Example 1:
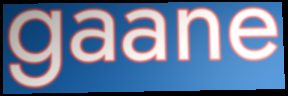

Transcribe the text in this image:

gaane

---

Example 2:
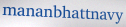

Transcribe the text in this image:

mananbhattnavy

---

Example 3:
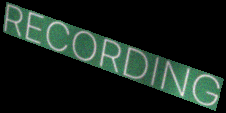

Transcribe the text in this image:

RECORDING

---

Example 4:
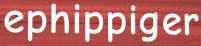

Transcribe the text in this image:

ephippiger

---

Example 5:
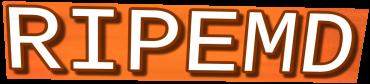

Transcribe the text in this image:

RIPEMD